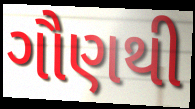
ગૌણથી